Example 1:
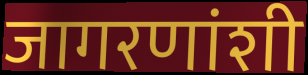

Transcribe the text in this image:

जागरणांशी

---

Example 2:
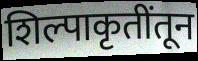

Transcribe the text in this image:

शिल्पाकृतींतून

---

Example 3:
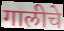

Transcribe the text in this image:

गालीचे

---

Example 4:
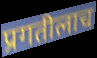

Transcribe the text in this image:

प्रगतीलाच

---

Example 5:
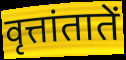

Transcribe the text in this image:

वृत्तांतातें